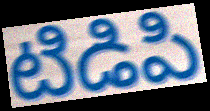
టిడిపి